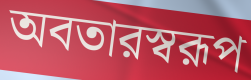
অবতারস্বরূপ